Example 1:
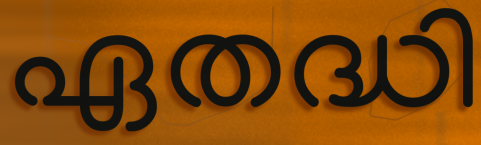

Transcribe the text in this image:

ഏതദ്ധി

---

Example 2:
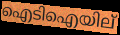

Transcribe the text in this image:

ഐടിഐയില്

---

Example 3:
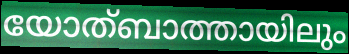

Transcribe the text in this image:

യോത്ബാത്തായിലും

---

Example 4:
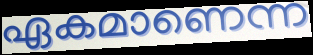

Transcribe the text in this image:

ഏകമാണെന്ന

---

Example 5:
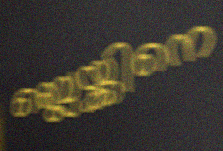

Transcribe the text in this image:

ബ്ലെയ്ക്കിനെ